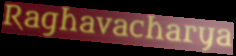
Raghavacharya